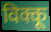
विक्कू